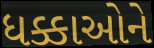
ધક્કાઓને